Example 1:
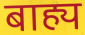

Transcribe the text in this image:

बाह्य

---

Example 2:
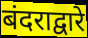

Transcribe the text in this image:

बंदराद्वारे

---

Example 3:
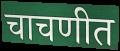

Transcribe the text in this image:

चाचणीत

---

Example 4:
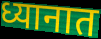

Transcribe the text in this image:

ध्यानात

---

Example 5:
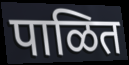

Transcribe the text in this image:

पाळित